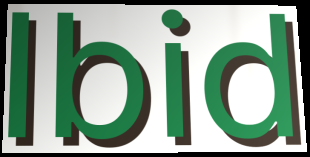
Ibid